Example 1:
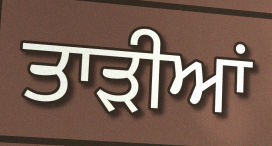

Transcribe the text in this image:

ਤਾੜੀਆਂ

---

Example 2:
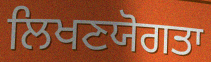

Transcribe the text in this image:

ਲਿਖਣਯੋਗਤਾ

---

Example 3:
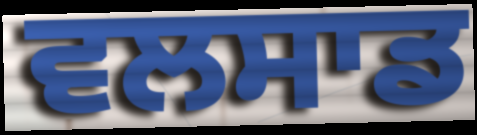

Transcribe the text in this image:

ਵਲਸਾਡ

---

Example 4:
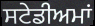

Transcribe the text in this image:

ਸਟੇਡੀਅਮਾਂ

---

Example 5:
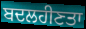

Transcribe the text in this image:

ਬਦਲਹੀਣਤਾ